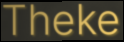
Theke